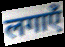
लगाएँ